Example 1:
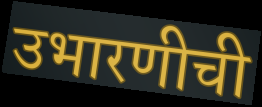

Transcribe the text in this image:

उभारणीची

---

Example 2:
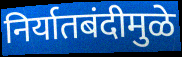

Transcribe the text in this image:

निर्यातबंदीमुळे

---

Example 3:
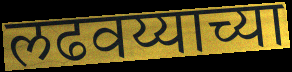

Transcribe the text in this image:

लढवय्याच्या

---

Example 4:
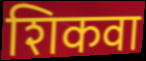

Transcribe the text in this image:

शिकवा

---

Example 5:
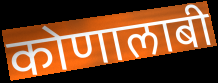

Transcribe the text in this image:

कोणालाबी